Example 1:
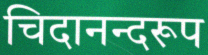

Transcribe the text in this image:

चिदानन्दरूप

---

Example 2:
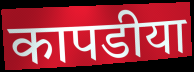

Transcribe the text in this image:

कापडीया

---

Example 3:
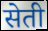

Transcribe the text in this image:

सेती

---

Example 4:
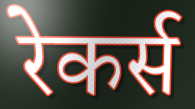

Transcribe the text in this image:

रेकर्स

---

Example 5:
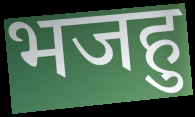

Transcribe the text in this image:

भजहु